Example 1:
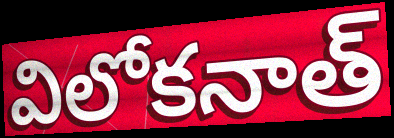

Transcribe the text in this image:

విలోకనాత్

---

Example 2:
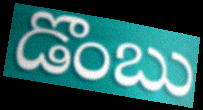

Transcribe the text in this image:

డొంబు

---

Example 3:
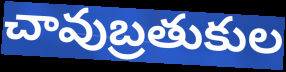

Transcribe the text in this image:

చావుబ్రతుకుల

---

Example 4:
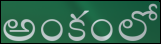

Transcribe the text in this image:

అంకంలో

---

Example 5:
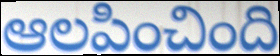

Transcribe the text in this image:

ఆలపించింది